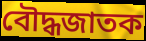
বৌদ্ধজাতক